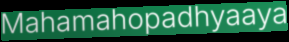
Mahamahopadhyaaya